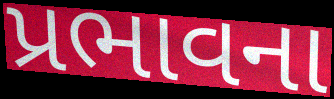
પ્રભાવના